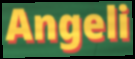
Angeli